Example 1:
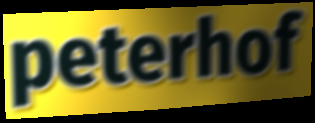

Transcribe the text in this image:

peterhof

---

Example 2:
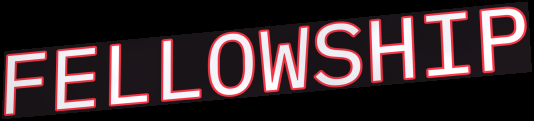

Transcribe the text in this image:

FELLOWSHIP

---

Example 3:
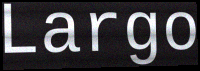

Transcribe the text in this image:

Largo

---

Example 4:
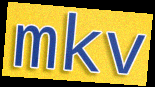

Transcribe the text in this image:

mkv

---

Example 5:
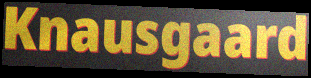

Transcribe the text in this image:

Knausgaard